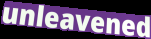
unleavened